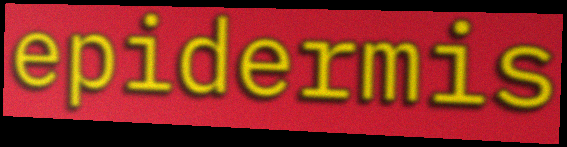
epidermis